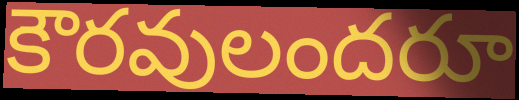
కౌరవులందరూ